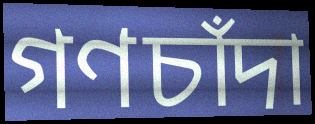
গণচাঁদা